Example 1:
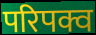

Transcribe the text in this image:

परिपक्व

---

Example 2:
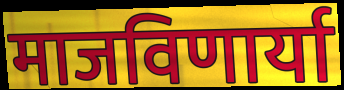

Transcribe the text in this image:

माजविणार्या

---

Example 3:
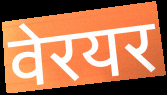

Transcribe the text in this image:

वेरयर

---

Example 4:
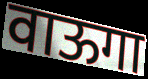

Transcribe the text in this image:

वाऊगा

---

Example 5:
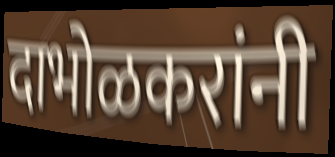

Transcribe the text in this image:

दाभोळकरांनी